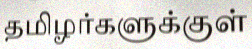
தமிழர்களுக்குள்